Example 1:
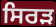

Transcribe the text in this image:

ਸਿਰੜ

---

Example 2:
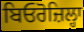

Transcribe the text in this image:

ਬਿਓਰੋਜ਼ਿਲ੍ਹਾ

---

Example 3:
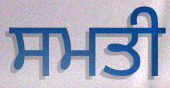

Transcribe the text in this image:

ਸਮਤੀ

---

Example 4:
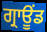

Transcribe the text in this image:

ਗ੍ਰਾਊਂਡ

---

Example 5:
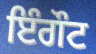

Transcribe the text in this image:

ਇੰਗੌਟ